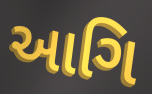
આગિ